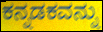
ಕನ್ನಡಕವನ್ನು